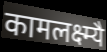
कामलक्ष्म्यै